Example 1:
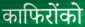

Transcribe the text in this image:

काफिरोंको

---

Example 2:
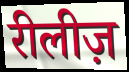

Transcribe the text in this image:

रीलीज़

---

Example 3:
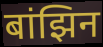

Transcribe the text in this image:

बांझिन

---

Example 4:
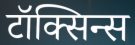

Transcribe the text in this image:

टॉक्सिन्स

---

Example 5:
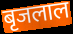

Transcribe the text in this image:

बृजलाल